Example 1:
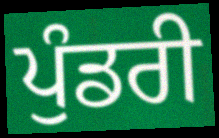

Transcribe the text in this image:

ਪੁੰਡਰੀ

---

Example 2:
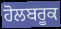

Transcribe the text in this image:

ਹੋਲਬਰੂਕ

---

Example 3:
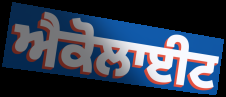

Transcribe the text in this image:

ਐਕੋਲਾਈਟ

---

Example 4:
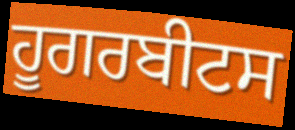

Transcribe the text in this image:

ਹੂਗਰਬੀਟਸ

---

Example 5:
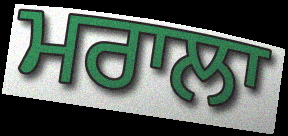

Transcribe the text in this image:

ਮਰਾਲਾ